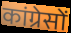
कांग्रेसों